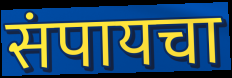
संपायचा